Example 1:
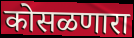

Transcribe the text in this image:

कोसळणारा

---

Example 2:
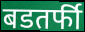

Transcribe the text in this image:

बडतर्फी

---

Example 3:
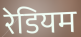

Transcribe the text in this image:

रेडियम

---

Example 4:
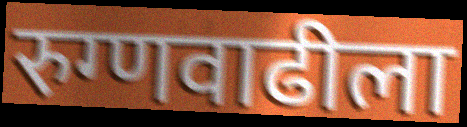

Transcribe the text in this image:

रुग्णवाढीला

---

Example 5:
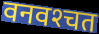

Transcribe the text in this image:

वनवश्चत